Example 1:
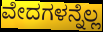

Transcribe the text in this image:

ವೇದಗಳನ್ನೆಲ್ಲ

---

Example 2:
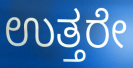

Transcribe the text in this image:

ಉತ್ತರೇ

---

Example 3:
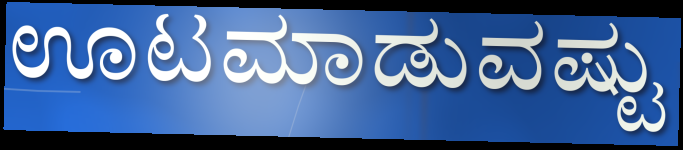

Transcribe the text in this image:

ಊಟಮಾಡುವಷ್ಟು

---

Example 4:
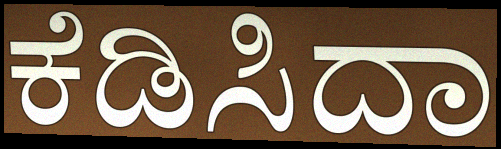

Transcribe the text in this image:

ಕೆಡಿಸಿದಾ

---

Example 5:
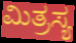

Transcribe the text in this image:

ಮಿತ್ರಸ್ಯ